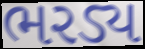
ભરડ્ય